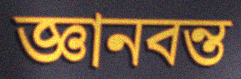
জ্ঞানবন্ত